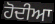
ਹੋਦੀਆ